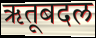
ऋतूबदल